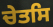
ਚੇਤਸਿ